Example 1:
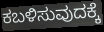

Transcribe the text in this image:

ಕಬಳಿಸುವುದಕ್ಕೆ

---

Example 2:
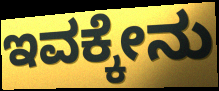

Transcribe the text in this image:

ಇವಕ್ಕೇನು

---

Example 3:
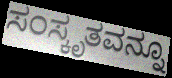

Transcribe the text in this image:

ಸಂಸ್ಕೃತವನ್ನೂ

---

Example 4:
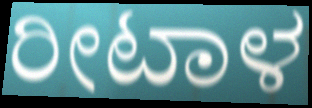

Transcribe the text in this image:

ರೀಟಾಳ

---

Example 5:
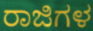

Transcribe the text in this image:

ರಾಜಿಗಳ